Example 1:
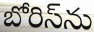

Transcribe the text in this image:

బోరిస్‌ను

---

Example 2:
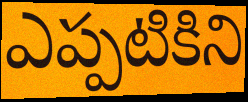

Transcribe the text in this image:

ఎప్పటికిని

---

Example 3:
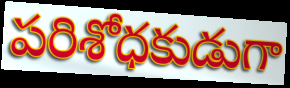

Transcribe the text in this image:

పరిశోధకుడుగా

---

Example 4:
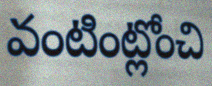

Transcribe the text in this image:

వంటింట్లోంచి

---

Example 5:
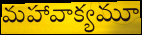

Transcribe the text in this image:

మహావాక్యమూ